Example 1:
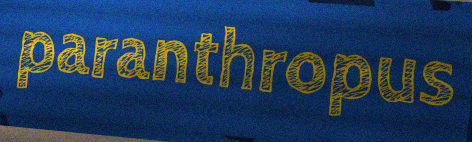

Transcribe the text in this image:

paranthropus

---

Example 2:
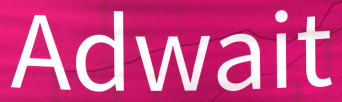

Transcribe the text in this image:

Adwait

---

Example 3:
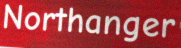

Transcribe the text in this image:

Northanger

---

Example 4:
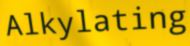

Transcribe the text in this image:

Alkylating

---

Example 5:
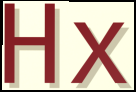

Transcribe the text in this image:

Hx